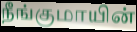
நீங்குமாயின்